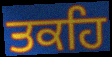
ਤਕਹਿ